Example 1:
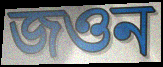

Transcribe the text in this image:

জওন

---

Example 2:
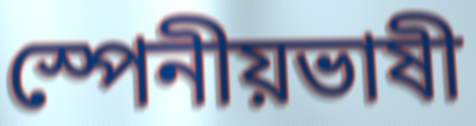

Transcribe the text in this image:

স্পেনীয়ভাষী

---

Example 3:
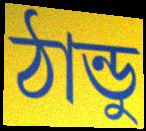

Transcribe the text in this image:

ঠান্ডু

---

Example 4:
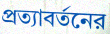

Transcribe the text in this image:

প্রত্যাবর্তনের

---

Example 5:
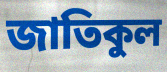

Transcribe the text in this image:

জাতিকুল